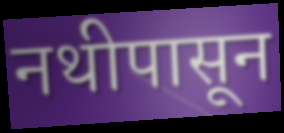
नथीपासून